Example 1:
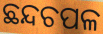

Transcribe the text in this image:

ଛନ୍ଦଚପଳ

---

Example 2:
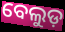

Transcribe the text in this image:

ବେଲୁଡ଼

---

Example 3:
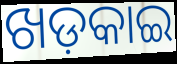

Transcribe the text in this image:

ଖଡ଼କାଇ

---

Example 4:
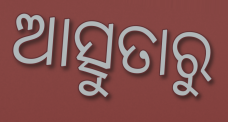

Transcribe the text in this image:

ଆତ୍ସୁତାରୁ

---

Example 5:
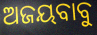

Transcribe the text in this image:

ଅଜୟବାବୁ